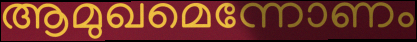
ആമുഖമെന്നോണം